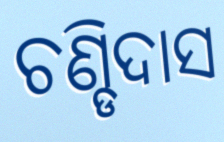
ଚଣ୍ଡିଦାସ